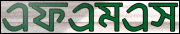
এফএমএস